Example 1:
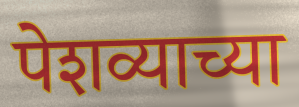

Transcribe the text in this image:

पेशव्याच्या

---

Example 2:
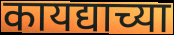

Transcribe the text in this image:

कायद्याच्या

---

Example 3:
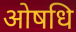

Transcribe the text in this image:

ओषधि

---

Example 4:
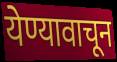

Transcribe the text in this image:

येण्यावाचून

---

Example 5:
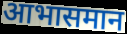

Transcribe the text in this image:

आभासमान